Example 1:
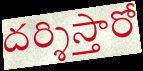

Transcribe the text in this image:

దర్శిస్తారో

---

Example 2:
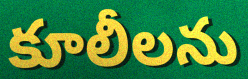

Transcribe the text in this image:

కూలీలను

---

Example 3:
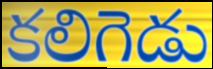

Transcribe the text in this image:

కలిగెడు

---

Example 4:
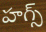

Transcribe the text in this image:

హగ్స్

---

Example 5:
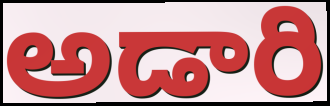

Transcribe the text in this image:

అడారి